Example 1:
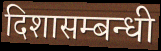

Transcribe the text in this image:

दिशासम्बन्धी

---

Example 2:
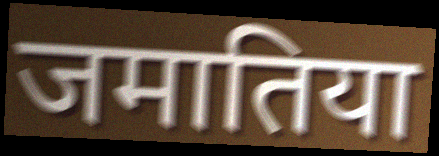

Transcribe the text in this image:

जमातिया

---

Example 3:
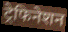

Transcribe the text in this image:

ट्रेफिनेशन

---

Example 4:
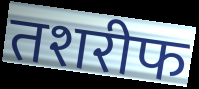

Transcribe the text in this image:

तशरीफ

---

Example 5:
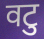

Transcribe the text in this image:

वटु